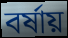
বর্ষায়